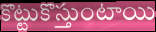
కొట్టుకొస్తుంటాయి